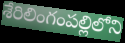
శేరిలింగంపల్లిలోని